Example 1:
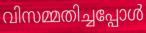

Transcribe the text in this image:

വിസമ്മതിച്ചപ്പോൾ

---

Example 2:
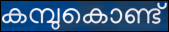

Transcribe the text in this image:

കമ്പുകൊണ്ട്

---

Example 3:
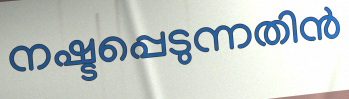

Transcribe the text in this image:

നഷ്ടപ്പെടുന്നതിൻ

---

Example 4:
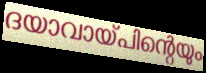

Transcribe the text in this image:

ദയാവായ്പിന്റെയും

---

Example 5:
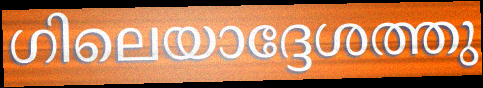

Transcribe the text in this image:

ഗിലെയാദ്ദേശത്തു